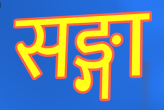
सङ्गा